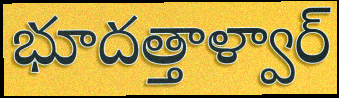
భూదత్తాళ్వార్